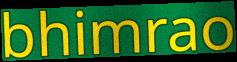
bhimrao